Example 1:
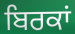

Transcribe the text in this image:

ਬਿਰਕਾਂ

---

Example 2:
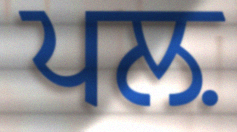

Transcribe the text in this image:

ਪਲ਼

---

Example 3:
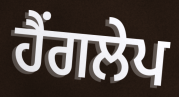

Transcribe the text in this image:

ਹੈਂਗਲੇਪ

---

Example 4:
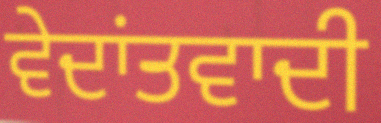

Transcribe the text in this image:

ਵੇਦਾਂਤਵਾਦੀ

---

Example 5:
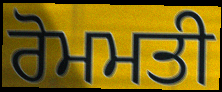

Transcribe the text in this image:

ਰੋਮਮਤੀ